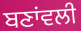
ਬਣਾਂਵਲੀ